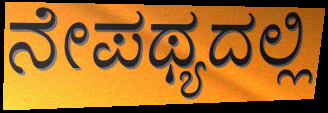
ನೇಪಥ್ಯದಲ್ಲಿ